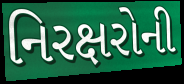
નિરક્ષરોની